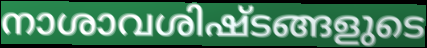
നാശാവശിഷ്ടങ്ങളുടെ